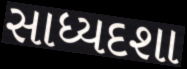
સાધ્યદશા